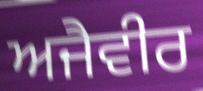
ਅਜੈਵੀਰ